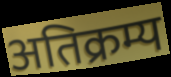
अतिक्रम्य